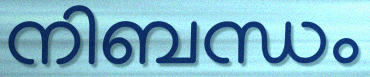
നിബന്ധം